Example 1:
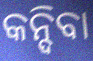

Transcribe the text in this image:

କନ୍ଦିବା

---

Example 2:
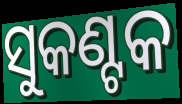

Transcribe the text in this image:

ସୁକଣ୍ଟକ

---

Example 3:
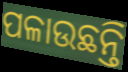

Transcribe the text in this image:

ପଳାଉଛନ୍ତି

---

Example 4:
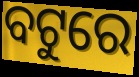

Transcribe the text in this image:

ବଟୁରେ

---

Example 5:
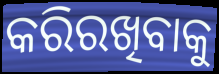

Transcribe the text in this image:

କରିରଖିବାକୁ